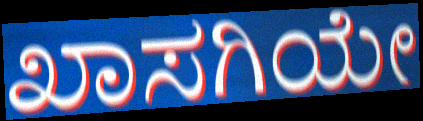
ಖಾಸಗಿಯೇ